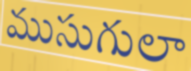
ముసుగులా